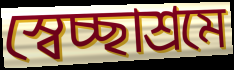
স্বেচ্ছাশ্রমে